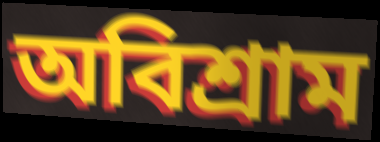
অবিশ্রাম